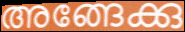
അങ്ങേക്കു